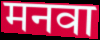
मनवा